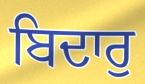
ਬਿਦਾਰੁ